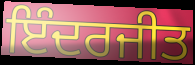
ਇੰਦਰਜੀਤ